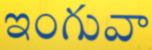
ఇంగువా